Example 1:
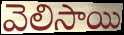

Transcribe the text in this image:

వెలిసాయి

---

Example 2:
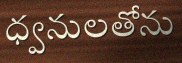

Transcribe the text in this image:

ధ్వనులతోను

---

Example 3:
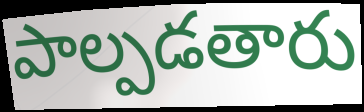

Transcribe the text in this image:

పాల్పడతారు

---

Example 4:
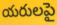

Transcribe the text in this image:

యరులపై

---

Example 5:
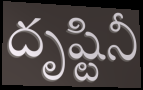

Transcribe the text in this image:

దృష్టినీ